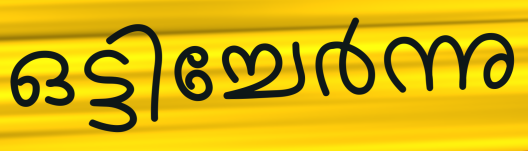
ഒട്ടിച്ചേർന്നു